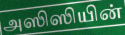
அஸிஸியின்